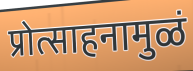
प्रोत्साहनामुळं